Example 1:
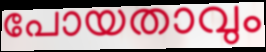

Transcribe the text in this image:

പോയതാവും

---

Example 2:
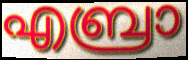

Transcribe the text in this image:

എബ്രാ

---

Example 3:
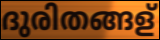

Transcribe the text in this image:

ദുരിതങ്ങള്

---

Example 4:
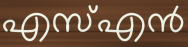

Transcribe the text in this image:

എസ്എൻ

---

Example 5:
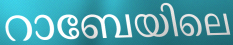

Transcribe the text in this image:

റാബേയിലെ